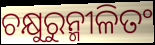
ଚକ୍ଷୁରୁନ୍ମୀଳିତଂ